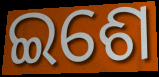
ଇଶେ